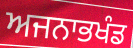
ਅਜਨਾਭਖੰਡ